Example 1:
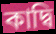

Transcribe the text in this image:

কাদ্বি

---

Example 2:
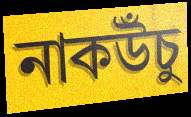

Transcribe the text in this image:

নাকউঁচু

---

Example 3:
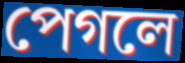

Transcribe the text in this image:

পেগলে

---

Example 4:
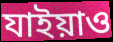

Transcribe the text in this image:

যাইয়াও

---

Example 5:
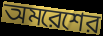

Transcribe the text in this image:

অমরেশের